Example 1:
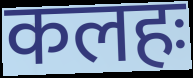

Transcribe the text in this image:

कलहः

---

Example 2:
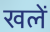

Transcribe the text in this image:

खलें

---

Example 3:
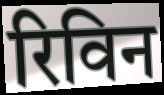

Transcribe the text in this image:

रिविन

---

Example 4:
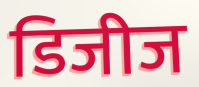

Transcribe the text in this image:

डिजीज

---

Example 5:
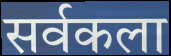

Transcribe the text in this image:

सर्वकला